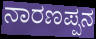
ನಾರಣಪ್ಪನ